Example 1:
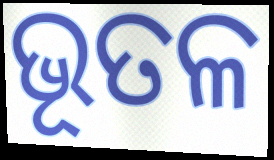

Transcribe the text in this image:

ଭୂତଳ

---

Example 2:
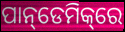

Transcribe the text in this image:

ପାନ୍‌ଡେମିକ୍‌ରେ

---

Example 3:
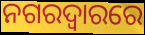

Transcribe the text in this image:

ନଗରଦ୍ୱାରରେ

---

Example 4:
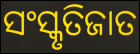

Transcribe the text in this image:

ସଂସ୍କୃତିଜାତ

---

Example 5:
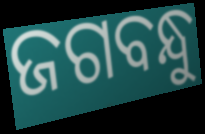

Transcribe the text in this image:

ଜଗବନ୍ଧୁ